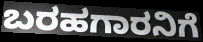
ಬರಹಗಾರನಿಗೆ